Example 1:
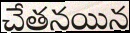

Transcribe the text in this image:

చేతనయిన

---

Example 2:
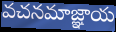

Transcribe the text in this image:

వచనమాజ్ఞాయ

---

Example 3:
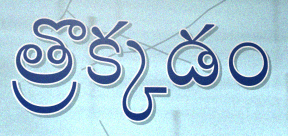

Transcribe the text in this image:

త్రొక్కడం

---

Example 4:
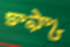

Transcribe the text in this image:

కాఫ్కా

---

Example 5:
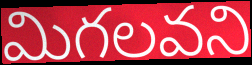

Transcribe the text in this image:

మిగలవని